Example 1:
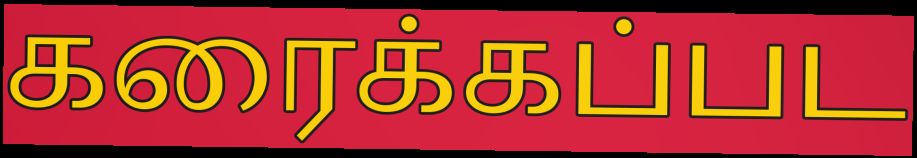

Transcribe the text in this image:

கரைக்கப்பட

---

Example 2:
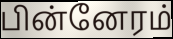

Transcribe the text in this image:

பின்னேரம்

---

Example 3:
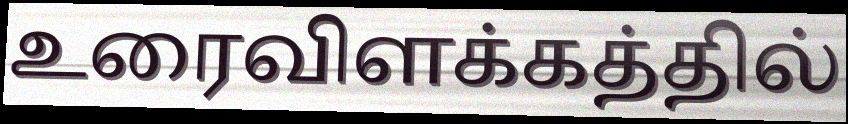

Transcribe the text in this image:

உரைவிளக்கத்தில்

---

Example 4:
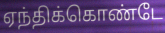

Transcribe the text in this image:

ஏந்திக்கொண்டே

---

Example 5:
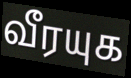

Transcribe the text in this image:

வீரயுக